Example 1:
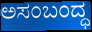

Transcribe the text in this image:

ಅಸಂಬಂದ್ಧ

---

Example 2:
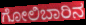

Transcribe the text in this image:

ಗೋಲಿಬಾರಿನ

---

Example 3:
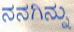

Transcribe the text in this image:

ನನಗಿನ್ನು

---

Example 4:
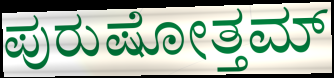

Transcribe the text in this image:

ಪುರುಷೋತ್ತಮ್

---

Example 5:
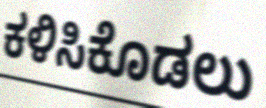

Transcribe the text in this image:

ಕಳಿಸಿಕೊಡಲು